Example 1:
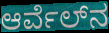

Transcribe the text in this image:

ಆರ್ವೆಲ್‍ನ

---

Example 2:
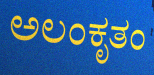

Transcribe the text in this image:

ಅಲಂಕೃತಂ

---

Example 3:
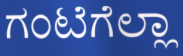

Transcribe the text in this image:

ಗಂಟೆಗೆಲ್ಲಾ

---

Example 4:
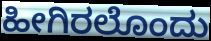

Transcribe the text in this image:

ಹೀಗಿರಲೊಂದು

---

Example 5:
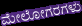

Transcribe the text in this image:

ಮೇಲೋಗರಗಳು